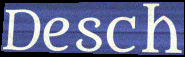
Desch